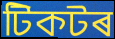
টিকটৰ